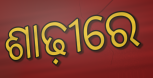
ଶାଢ଼ୀରେ